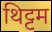
थिट्टम